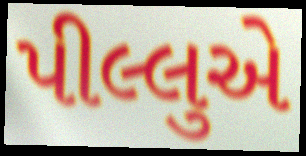
પીલ્લુએ